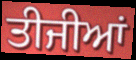
ਤੀਜੀਆਂ